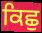
ਕਿਛੁ